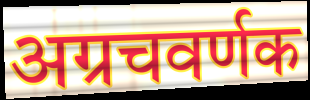
अग्रचवर्णक